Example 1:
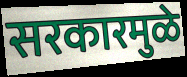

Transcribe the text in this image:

सरकारमुळे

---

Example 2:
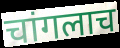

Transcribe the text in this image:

चांगलाच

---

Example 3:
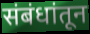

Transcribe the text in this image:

संबंधांतून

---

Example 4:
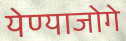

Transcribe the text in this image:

येण्याजोगे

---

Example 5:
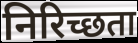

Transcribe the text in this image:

निरिच्छता